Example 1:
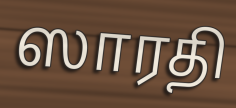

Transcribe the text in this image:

ஸாரதி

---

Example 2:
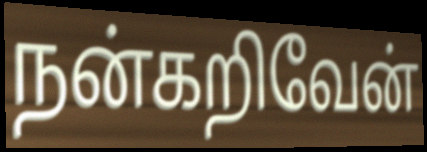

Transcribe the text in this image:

நன்கறிவேன்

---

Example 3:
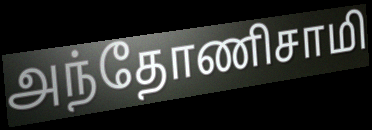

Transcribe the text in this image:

அந்தோணிசாமி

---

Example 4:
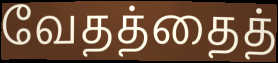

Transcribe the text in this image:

வேதத்தைத்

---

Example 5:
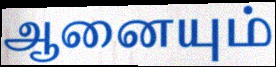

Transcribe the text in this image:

ஆனையும்